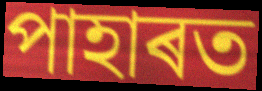
পাহাৰত